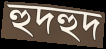
হুদহুদ